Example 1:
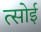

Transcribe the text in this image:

त्सोई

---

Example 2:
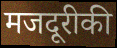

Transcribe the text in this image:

मजदूरीकी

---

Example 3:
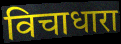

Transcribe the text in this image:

विचाधारा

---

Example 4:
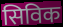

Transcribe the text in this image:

सिविक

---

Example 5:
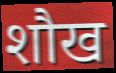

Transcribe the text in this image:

शौख